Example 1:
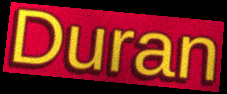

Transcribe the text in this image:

Duran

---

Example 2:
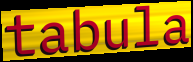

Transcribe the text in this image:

tabula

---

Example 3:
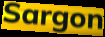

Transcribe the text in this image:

Sargon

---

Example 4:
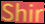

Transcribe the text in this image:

Shir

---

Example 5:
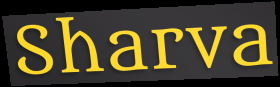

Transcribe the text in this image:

Sharva